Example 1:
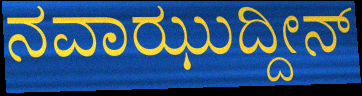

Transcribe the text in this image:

ನವಾಝುದ್ದೀನ್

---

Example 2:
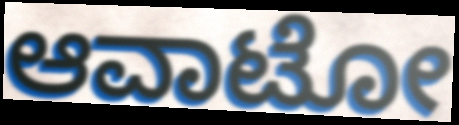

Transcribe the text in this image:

ಆವಾಟೋ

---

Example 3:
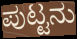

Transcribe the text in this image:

ಪುಟ್ಟನು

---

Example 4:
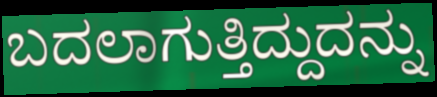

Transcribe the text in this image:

ಬದಲಾಗುತ್ತಿದ್ದುದನ್ನು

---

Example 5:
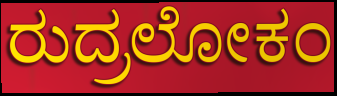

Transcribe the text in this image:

ರುದ್ರಲೋಕಂ